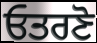
ਓਤਰਣੋ